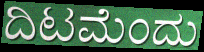
ದಿಟಮೆಂದು